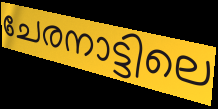
ചേരനാട്ടിലെ